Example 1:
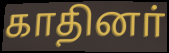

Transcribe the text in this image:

காதினர்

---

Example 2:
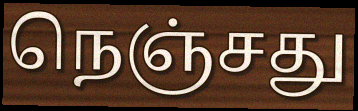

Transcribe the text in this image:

நெஞ்சது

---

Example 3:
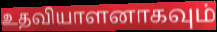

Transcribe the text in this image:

உதவியாளனாகவும்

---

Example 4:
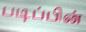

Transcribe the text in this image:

படிப்பின்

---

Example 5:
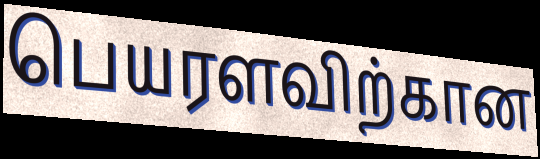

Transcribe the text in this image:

பெயரளவிற்கான